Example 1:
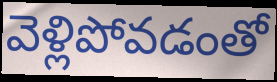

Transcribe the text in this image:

వెళ్లిపోవడంతో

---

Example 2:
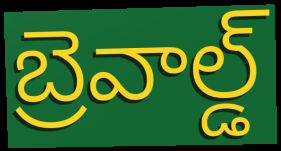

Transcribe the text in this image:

బ్రెవాల్డ్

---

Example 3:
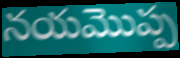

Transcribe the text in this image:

నయమొప్ప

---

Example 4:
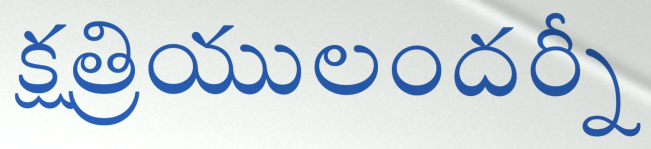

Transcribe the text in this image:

క్షత్రియులందర్నీ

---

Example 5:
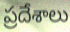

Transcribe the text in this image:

ప్రదేశాలు